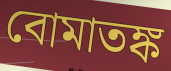
বোমাতঙ্ক